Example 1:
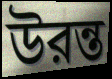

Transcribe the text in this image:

উরন্ত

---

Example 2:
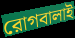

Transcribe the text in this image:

রোগবালাই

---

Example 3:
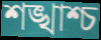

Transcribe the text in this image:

শঙ্খাশ্চ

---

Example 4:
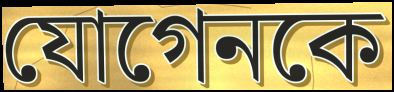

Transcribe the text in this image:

যোগেনকে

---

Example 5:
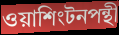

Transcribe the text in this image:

ওয়াশিংটনপন্থী